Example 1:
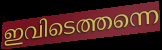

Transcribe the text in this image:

ഇവിടെത്തന്നെ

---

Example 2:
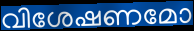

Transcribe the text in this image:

വിശേഷണമോ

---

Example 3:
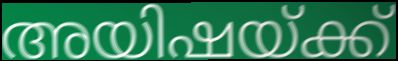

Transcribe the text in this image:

അയിഷയ്ക്ക്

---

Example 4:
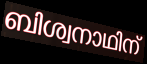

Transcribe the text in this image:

ബിശ്വനാഥിന്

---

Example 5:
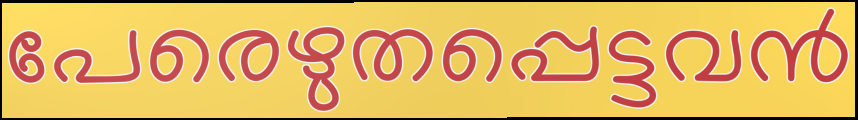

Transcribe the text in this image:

പേരെഴുതപ്പെട്ടവൻ